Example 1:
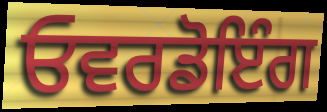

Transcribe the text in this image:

ਓਵਰਡੋਇੰਗ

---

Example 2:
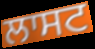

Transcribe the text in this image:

ਲਾਸਟ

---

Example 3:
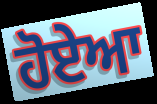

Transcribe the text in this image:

ਹੋਏਆ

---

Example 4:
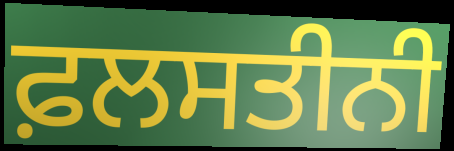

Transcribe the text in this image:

ਫ਼ਲਸਤੀਨੀ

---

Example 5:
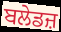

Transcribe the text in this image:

ਬਲੇਡਜ਼